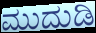
ಮುದುಡಿ